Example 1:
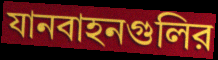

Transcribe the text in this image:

যানবাহনগুলির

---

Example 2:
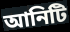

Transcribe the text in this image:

আনিটি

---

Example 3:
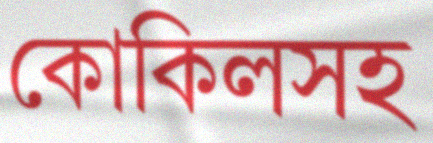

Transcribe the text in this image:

কোকিলসহ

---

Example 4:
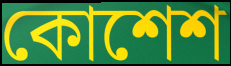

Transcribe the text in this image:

কোশেশ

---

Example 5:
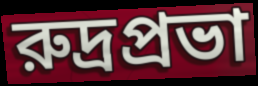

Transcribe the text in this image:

রুদ্রপ্রভা